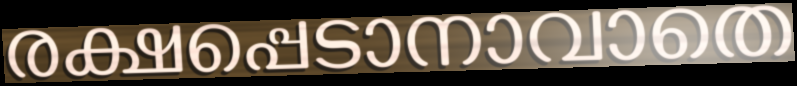
രക്ഷപ്പെടാനാവാതെ